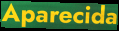
Aparecida